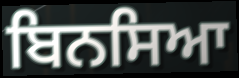
ਬਿਨਸਿਆ